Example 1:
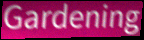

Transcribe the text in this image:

Gardening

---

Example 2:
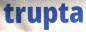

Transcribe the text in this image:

trupta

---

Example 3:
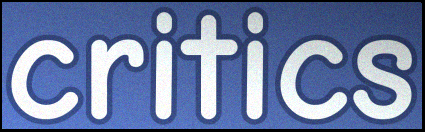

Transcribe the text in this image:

critics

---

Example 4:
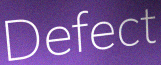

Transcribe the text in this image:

Defect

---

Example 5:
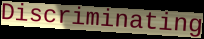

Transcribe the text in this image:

Discriminating